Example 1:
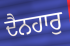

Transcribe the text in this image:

ਦੈਨਹਾਰੁ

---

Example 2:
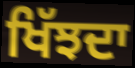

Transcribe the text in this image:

ਖਿੱਝਦਾ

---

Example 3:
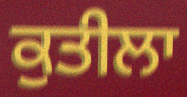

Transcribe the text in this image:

ਕੁਤੀਲਾ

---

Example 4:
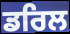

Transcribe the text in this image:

ਡਰਿਲ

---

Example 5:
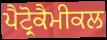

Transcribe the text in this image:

ਪੈਟ੍ਰੋਕੈਮੀਕਲ